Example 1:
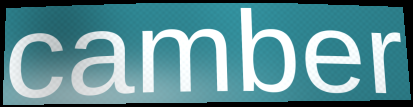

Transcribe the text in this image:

camber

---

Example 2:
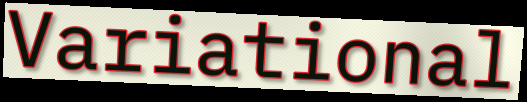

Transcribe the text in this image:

Variational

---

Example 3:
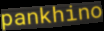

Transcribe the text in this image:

pankhino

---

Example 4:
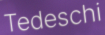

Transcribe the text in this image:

Tedeschi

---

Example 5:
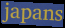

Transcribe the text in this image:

japans